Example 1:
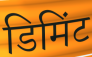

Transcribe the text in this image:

डिमिंट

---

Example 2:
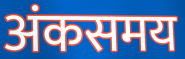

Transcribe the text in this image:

अंकसमय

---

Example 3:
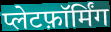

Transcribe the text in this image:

प्लेटफ़ॉर्मिंग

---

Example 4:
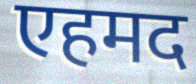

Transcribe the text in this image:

एहमद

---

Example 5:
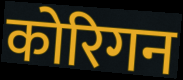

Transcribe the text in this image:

कोरिगन